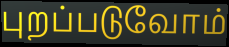
புறப்படுவோம்